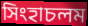
সিংহাচলম